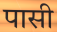
पासी